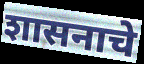
शासनाचे